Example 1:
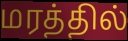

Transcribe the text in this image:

மரத்தில்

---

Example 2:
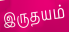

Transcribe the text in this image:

இருதயம்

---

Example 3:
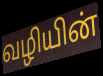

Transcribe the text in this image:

வழியின்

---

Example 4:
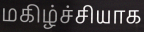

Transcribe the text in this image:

மகிழ்ச்சியாக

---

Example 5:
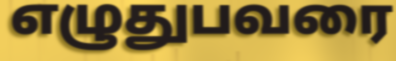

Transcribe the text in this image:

எழுதுபவரை